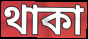
থাকা